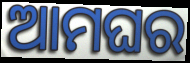
ଆମଘର